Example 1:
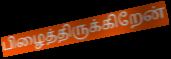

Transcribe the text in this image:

பிழைத்திருக்கிறேன்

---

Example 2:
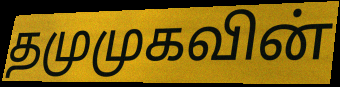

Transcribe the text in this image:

தமுமுகவின்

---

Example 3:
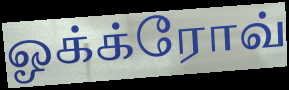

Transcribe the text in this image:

ஓக்க்ரோவ்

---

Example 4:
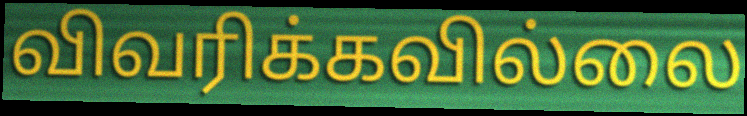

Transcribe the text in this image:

விவரிக்கவில்லை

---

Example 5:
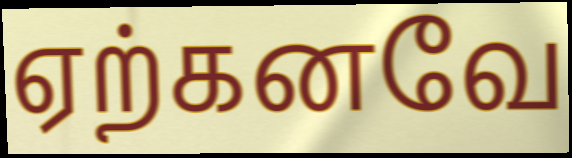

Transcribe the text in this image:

ஏற்கனவே